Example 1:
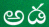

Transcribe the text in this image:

అడ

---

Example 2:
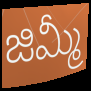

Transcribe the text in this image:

జిమ్మీ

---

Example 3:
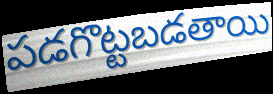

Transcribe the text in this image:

పడగొట్టబడతాయి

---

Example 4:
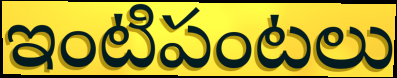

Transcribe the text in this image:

ఇంటిపంటలు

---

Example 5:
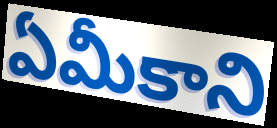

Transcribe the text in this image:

ఏమీకాని